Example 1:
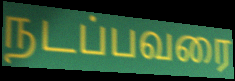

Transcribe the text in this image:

நடப்பவரை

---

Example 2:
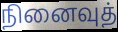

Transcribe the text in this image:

நினைவுத்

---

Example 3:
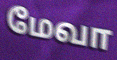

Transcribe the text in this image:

மேவா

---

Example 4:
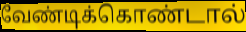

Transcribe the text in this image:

வேண்டிக்கொண்டால்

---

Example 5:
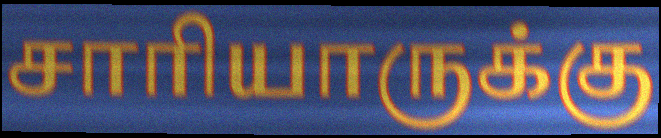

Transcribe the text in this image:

சாரியாருக்கு